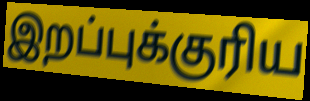
இறப்புக்குரிய